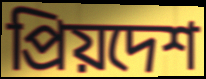
প্রিয়দেশ